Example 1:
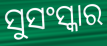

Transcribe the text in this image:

ସୁସଂସ୍କାର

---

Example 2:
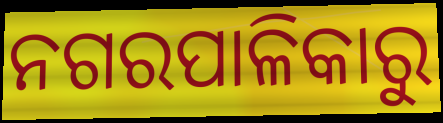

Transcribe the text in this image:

ନଗରପାଳିକାରୁ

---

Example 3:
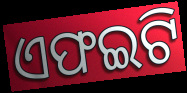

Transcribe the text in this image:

ଏଫଇଟି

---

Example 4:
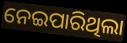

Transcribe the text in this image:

ନେଇପାରିଥିଲା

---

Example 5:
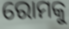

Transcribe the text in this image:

ରୋମକୁ